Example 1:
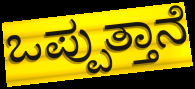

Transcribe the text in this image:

ಒಪ್ಪುತ್ತಾನೆ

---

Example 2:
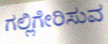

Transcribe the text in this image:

ಗಲ್ಲಿಗೇರಿಸುವ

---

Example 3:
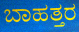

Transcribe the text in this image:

ಬಾಹತ್ತರ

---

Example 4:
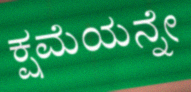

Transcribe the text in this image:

ಕ್ಷಮೆಯನ್ನೇ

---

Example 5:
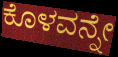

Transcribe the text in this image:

ಕೊಳವನ್ನೇ